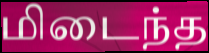
மிடைந்த